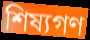
শিষ্যগণ